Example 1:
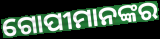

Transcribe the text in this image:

ଗୋପୀମାନଙ୍କର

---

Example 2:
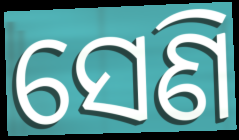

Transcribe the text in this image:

ସେଣି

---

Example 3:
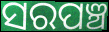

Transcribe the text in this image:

ସରପଞ୍ଚ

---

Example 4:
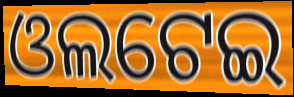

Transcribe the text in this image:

ଓଲଟେଇ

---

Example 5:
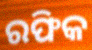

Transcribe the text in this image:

ରଫିକ